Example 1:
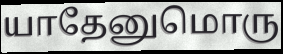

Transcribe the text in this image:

யாதேனுமொரு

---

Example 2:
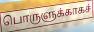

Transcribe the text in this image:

பொருளுக்காகச்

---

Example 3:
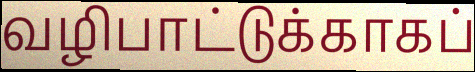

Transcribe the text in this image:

வழிபாட்டுக்காகப்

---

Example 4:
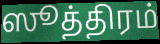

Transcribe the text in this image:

ஸூத்திரம்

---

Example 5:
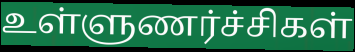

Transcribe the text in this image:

உள்ளுணர்ச்சிகள்